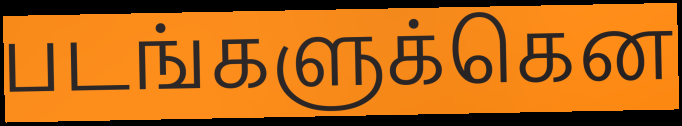
படங்களுக்கென